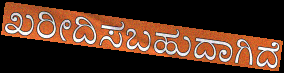
ಖರೀದಿಸಬಹುದಾಗಿದೆ